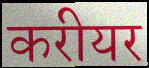
करीयर